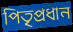
পিতৃপ্ৰধান